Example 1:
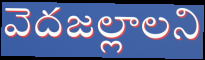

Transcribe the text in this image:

వెదజల్లాలని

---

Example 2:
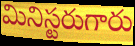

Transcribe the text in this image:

మినిస్టరుగారు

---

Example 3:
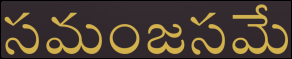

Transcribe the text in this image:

సమంజసమే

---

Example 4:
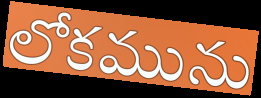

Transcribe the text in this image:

లోకమును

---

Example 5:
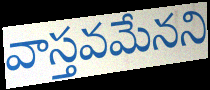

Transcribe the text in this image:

వాస్తవమేనని